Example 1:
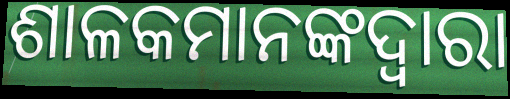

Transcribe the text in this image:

ଶାଳକମାନଙ୍କଦ୍ୱାରା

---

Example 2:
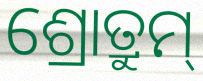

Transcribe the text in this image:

ଶ୍ରୋତ୍ରୁମ୍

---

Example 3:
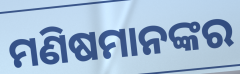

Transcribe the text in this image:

ମଣିଷମାନଙ୍କର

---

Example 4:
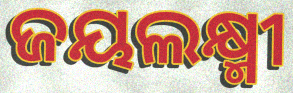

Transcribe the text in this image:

ଜୟଲକ୍ଷ୍ମୀ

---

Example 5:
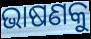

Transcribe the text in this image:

ଭାଷଣକୁ